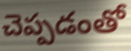
చెప్పడంతో